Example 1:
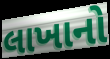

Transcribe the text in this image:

લાખાનો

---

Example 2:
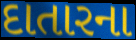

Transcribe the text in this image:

દાતારના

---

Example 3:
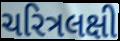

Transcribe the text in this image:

ચરિત્રલક્ષી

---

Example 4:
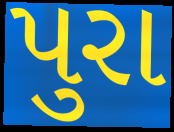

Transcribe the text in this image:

પુરા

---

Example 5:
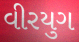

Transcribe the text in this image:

વીરયુગ